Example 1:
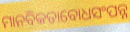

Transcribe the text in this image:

ମାନବିକତାବୋଧସଂପନ୍ନ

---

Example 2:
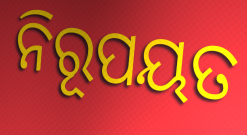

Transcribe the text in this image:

ନିରୂପୟତ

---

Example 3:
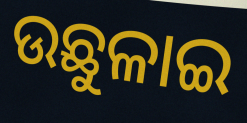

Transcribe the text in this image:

ଉଛୁଳାଇ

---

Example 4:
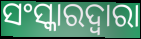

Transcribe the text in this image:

ସଂସ୍କାରଦ୍ୱାରା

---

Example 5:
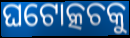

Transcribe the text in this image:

ଘଟୋତ୍କଚକୁ